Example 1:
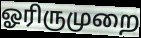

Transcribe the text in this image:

ஓரிருமுறை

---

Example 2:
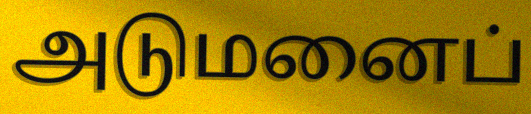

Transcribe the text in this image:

அடுமனைப்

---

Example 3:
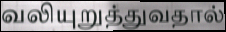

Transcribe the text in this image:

வலியுறுத்துவதால்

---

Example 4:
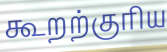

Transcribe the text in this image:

கூறற்குரிய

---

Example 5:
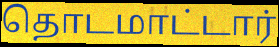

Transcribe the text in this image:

தொடமாட்டார்